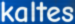
kaltes